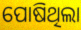
ପୋଷିଥିଲା